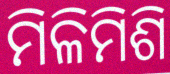
ମିଳିମିଶି